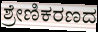
ಶ್ರೇಣಿಕರಣದ